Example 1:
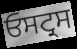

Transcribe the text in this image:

ਓਸਟ੍ਰਸ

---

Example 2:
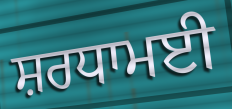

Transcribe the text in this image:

ਸ਼ਰਧਾਮਈ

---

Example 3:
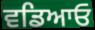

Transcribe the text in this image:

ਵਡਿਆਓ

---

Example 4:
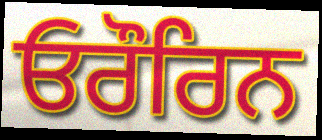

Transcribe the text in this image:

ਓਰੌਰਿਨ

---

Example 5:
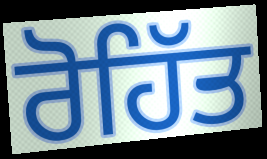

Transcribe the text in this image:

ਰੋਹਿੱਤ